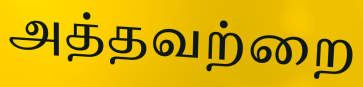
அத்தவற்றை